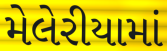
મેલેરીયામાં